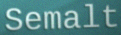
Semalt